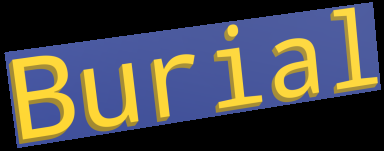
Burial